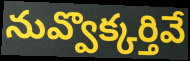
నువ్వొక్కర్తివే